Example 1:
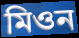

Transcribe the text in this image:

মিওন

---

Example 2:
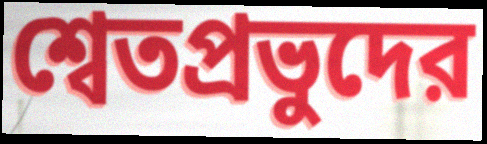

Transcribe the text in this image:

শ্বেতপ্রভুদের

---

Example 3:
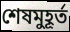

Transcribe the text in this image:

শেষমুহূর্ত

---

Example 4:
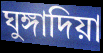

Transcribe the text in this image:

ঘুঙ্গাদিয়া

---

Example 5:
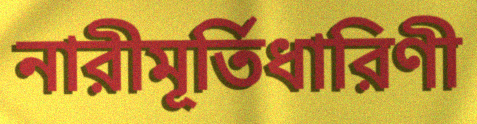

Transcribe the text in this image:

নারীমূর্তিধারিণী